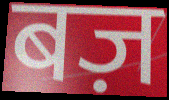
बज़